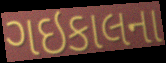
ગઇકાલના